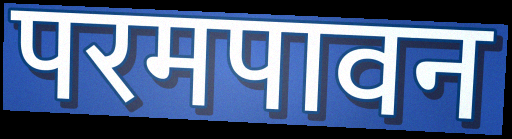
परमपावन